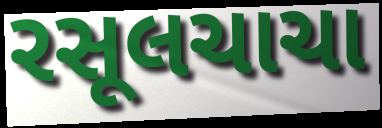
રસૂલચાચા